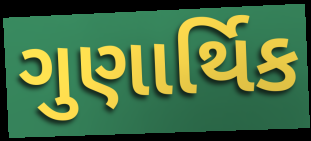
ગુણાર્થિક